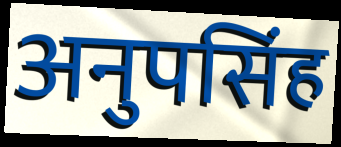
अनुपसिंह